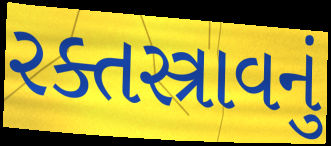
રક્તસ્ત્રાવનું